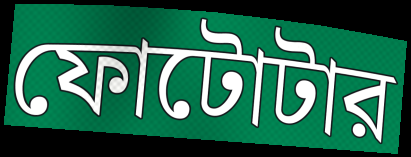
ফোটোটার